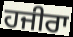
ਹਜੀਰਾ